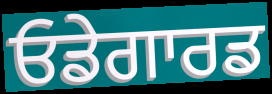
ਓਡੇਗਾਰਡ